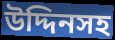
উদ্দিনসহ